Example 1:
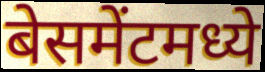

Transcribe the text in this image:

बेसमेंटमध्ये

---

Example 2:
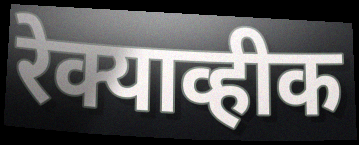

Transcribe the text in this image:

रेक्याव्हीक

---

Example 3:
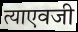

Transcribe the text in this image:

त्याएवजी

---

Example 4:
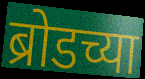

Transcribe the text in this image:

ब्रोडच्या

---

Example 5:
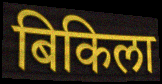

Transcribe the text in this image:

बिकिला